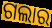
ଗଲାର